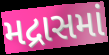
મદ્રાસમાં